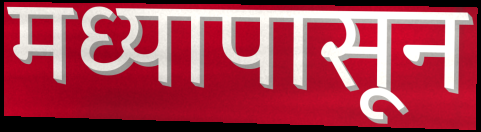
मध्यापासून